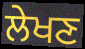
ਲੇਖਣ